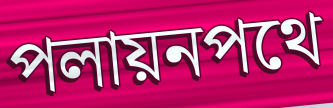
পলায়নপথে